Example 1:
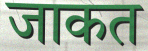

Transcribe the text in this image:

जाकत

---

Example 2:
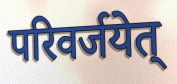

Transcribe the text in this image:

परिवर्जयेत्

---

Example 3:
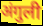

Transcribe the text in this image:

अंगुली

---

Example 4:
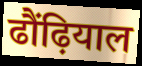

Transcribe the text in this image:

ढौंढ़ियाल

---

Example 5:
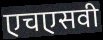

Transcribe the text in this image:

एचएसवी